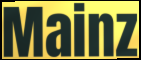
Mainz